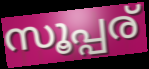
സൂപ്പര്